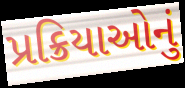
પ્રક્રિયાઓનું